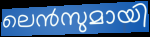
ലെൻസുമായി